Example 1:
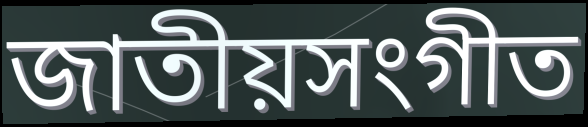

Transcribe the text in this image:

জাতীয়সংগীত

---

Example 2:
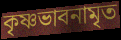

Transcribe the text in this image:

কৃষ্ণভাবনামৃত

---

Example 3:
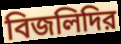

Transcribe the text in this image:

বিজলিদির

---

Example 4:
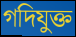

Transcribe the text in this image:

গদিযুক্ত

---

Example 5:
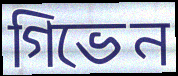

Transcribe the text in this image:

গিভেন